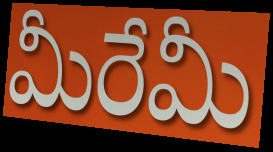
మీరేమీ